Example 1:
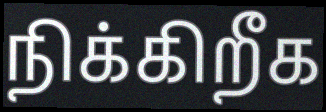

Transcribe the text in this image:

நிக்கிறீக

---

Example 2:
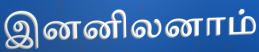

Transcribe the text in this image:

இனனிலனாம்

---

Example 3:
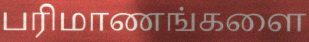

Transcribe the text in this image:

பரிமாணங்களை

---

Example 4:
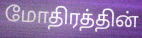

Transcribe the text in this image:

மோதிரத்தின்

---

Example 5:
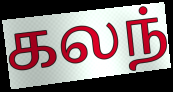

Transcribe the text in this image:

கலந்